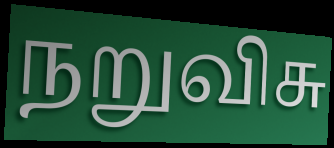
நறுவிசு